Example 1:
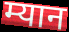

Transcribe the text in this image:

म्यान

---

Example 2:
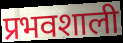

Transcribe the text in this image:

प्रभवशाली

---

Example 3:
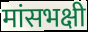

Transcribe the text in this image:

मांसभक्षी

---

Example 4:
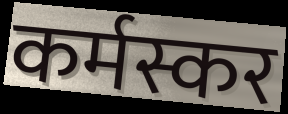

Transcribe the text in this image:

कर्मस्कर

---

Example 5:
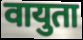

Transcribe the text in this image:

वायुता